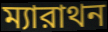
ম্যারাথন